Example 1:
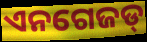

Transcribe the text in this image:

ଏନଗେଜଡ୍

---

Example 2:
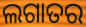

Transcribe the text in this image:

ଲଗାତର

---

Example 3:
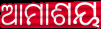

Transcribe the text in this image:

ଆମାଶୟ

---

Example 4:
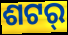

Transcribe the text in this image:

ଶଟର୍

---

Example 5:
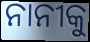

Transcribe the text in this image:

ନାନୀକୁ